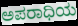
ಅಪರಾಧಿಯ